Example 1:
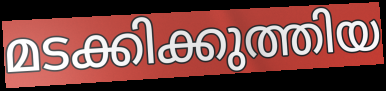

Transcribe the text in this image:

മടക്കിക്കുത്തിയ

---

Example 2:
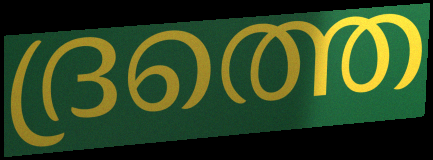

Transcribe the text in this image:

ദ്രത്തെ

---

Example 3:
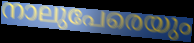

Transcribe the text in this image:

നാലുപേരെയും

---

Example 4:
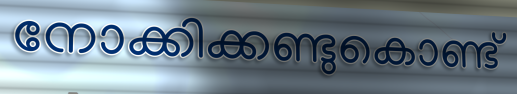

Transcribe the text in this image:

നോക്കിക്കണ്ടുകൊണ്ട്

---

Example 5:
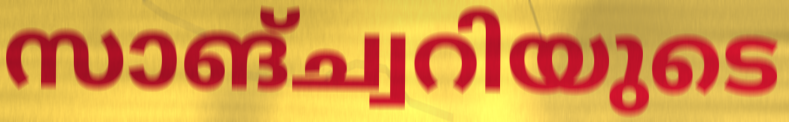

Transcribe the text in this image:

സാങ്ച്വറിയുടെ